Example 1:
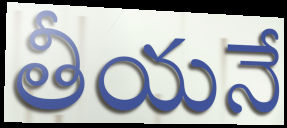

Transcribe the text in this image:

తీయనే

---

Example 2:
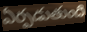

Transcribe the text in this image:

ఏర్పడుతుంది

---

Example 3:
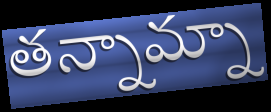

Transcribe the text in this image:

తన్నామ్నా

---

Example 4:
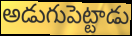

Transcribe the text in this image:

అడుగుపెట్టాడు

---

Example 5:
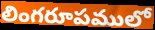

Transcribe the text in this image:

లింగరూపములో